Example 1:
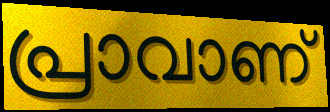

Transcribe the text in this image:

പ്രാവാണ്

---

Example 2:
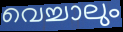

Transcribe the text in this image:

വെച്ചാലും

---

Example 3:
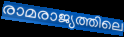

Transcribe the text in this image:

രാമരാജ്യത്തിലെ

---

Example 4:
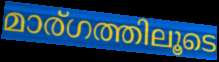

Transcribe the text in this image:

മാര്ഗത്തിലൂടെ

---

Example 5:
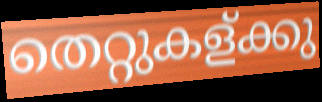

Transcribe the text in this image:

തെറ്റുകള്ക്കു